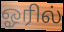
ஓரில்